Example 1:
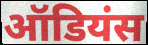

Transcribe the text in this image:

ऑडियंस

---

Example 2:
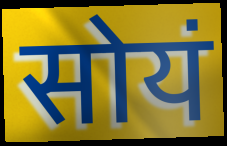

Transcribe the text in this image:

सोयं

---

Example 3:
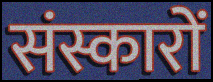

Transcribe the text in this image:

संस्कारों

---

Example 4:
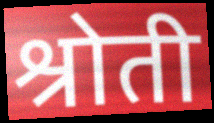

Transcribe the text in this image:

श्रोती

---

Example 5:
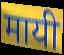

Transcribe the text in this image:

मायी